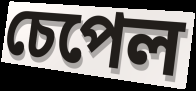
চেপেল